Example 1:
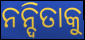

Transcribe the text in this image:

ନନ୍ଦିତାକୁ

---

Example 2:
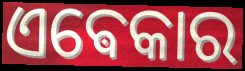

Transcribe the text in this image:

ଏଵେକାର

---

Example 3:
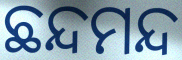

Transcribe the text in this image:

ଛନ୍ଦମନ୍ଦ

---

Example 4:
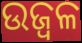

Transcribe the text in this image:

ଉଜ୍ବଳ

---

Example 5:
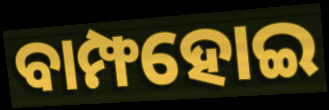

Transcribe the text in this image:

ବାମ୍ଫହୋଇ